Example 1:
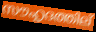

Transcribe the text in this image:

സൗഹൃദത്തില്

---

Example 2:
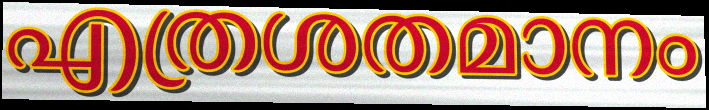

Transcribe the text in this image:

എത്രശതമാനം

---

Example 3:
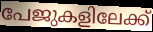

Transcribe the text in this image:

പേജുകളിലേക്ക്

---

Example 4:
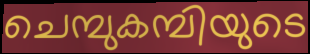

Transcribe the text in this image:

ചെമ്പുകമ്പിയുടെ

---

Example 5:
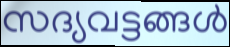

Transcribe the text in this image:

സദ്യവട്ടങ്ങൾ